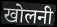
खोलनी